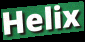
Helix